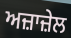
ਅਜ਼ਾਜ਼ੇਲ